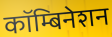
कॉम्बिनेशन